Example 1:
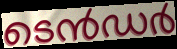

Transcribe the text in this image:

ടെൻഡർ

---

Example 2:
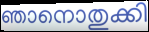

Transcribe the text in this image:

ഞാനൊതുക്കി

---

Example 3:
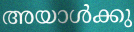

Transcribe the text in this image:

അയാൾക്കു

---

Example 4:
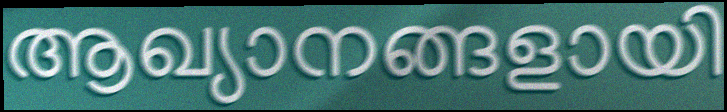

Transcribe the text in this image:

ആഖ്യാനങ്ങളായി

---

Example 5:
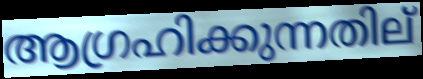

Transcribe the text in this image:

ആഗ്രഹിക്കുന്നതില്